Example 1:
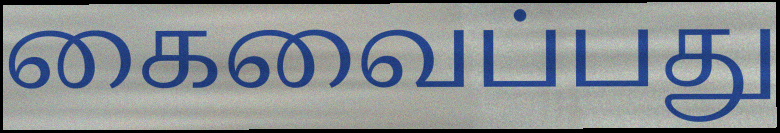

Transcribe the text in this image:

கைவைப்பது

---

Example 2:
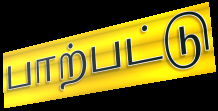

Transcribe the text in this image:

பாற்பட்டு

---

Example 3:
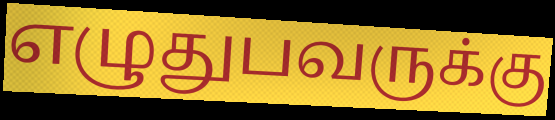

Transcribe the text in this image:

எழுதுபவருக்கு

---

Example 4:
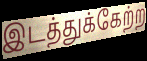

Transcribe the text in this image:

இடத்துக்கேற்ற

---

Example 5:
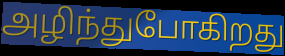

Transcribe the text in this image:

அழிந்துபோகிறது